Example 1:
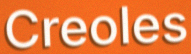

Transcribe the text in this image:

Creoles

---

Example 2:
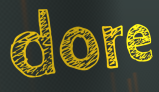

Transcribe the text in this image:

dore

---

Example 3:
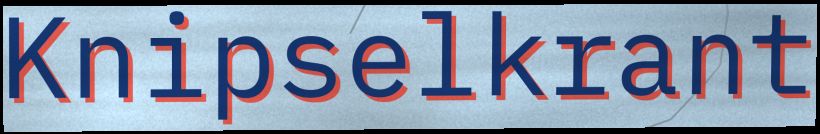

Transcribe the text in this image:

Knipselkrant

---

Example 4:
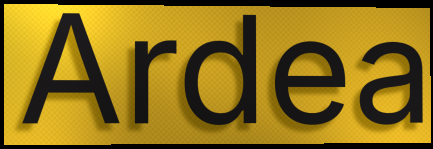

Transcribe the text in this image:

Ardea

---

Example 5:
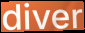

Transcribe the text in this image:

diver